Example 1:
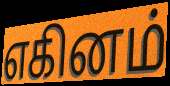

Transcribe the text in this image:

எகினம்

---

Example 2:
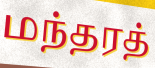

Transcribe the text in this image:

மந்தரத்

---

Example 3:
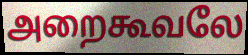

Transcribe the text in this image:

அறைகூவலே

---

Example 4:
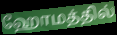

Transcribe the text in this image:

ஹோமத்தில்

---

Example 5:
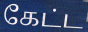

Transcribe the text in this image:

கேட்ட